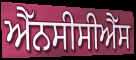
ਐੱਨਸੀਸੀਐੱਸ